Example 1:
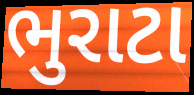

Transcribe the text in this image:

ભુરાટા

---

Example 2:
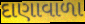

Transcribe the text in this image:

દાણાવાળા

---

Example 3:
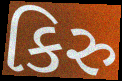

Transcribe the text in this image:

કિરુ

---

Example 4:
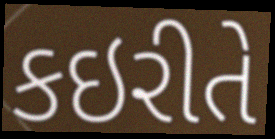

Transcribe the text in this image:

કઇરીતે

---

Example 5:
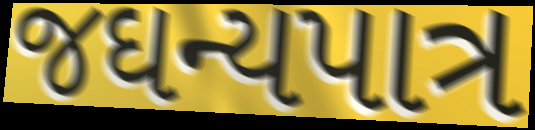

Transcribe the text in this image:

જઘન્યપાત્ર